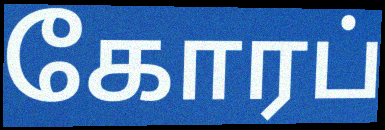
கோரப்